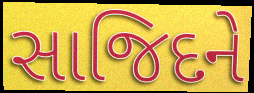
સાજિદને